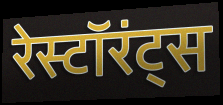
रेस्टॉरंट्स